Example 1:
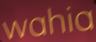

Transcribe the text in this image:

wahia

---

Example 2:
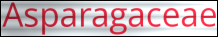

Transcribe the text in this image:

Asparagaceae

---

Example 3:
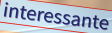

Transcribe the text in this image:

interessante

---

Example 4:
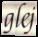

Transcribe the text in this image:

glej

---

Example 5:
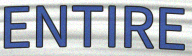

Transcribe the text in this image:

ENTIRE